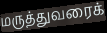
மருத்துவரைக்